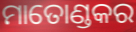
ମାତୋଣ୍ଡକର